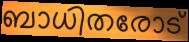
ബാധിതരോട്